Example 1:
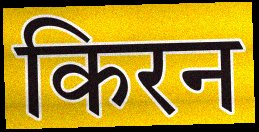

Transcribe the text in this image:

किरन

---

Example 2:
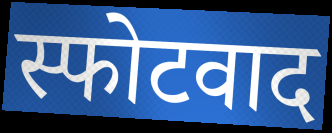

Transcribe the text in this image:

स्फोटवाद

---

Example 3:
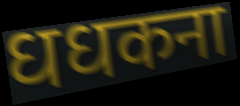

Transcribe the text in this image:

धधकना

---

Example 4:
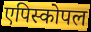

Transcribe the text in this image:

एपिस्कोपल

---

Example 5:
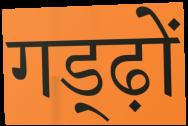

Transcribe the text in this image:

गड्‌ढ़ों